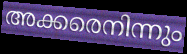
അക്കരെനിന്നും